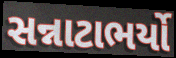
સન્નાટાભર્યો